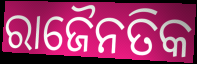
ରାଜୈନତିକ